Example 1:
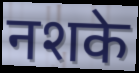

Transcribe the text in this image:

नशके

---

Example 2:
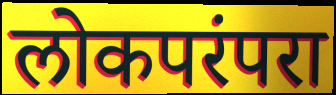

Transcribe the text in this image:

लोकपरंपरा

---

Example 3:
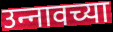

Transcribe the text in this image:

उन्नावच्या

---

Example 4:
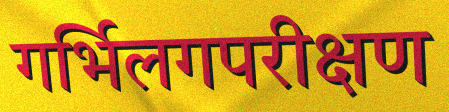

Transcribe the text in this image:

गर्भिलगपरीक्षण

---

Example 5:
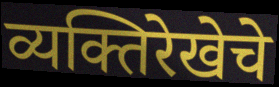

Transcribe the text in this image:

व्यक्तिरेखेचे